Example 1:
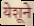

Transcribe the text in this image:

येशूने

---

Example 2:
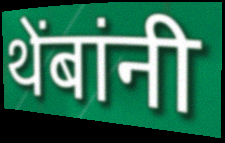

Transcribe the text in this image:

थेंबांनी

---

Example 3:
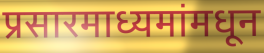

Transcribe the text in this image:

प्रसारमाध्यमांमधून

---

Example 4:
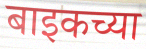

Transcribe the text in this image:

बाइकच्या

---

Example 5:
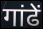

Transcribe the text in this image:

गांढें